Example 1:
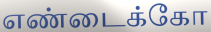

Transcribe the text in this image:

எண்டைக்கோ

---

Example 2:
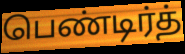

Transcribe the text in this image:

பெண்டிர்த்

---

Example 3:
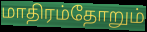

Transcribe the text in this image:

மாதிரம்தோறும்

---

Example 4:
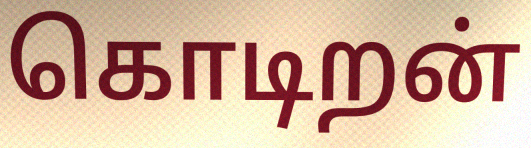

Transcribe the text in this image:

கொடிறன்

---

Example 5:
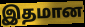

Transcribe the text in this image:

இதமான